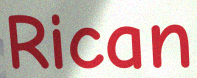
Rican